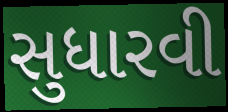
સુધારવી